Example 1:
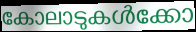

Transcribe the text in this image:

കോലാടുകൾക്കോ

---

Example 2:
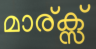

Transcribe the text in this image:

മാര്ക്സ്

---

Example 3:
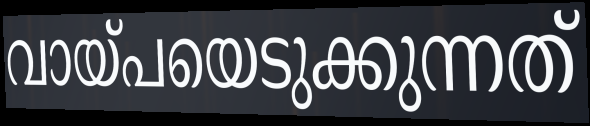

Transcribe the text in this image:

വായ്പയെടുക്കുന്നത്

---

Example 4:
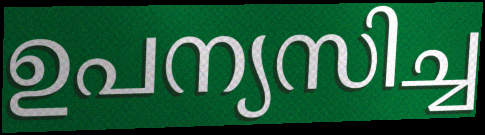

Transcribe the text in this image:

ഉപന്യസിച്ച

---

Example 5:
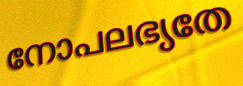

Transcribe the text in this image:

നോപലഭ്യതേ